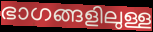
ഭാഗങ്ങളിലുള്ള